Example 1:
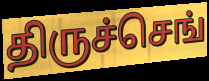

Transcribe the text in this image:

திருச்செங்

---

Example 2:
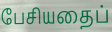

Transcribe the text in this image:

பேசியதைப்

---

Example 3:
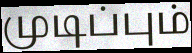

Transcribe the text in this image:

முடிப்பும்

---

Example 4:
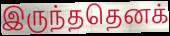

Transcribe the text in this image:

இருந்ததெனக்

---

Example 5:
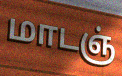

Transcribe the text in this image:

மாடஞ்